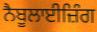
ਨੈਬੂਲਾਈਜ਼ਿੰਗ